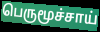
பெருமூச்சாய்